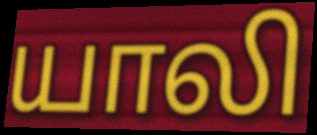
யாலி